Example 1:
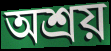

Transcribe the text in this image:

অশ্রয়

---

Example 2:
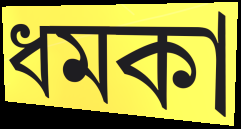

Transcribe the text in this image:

ধমকা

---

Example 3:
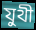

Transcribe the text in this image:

যুথী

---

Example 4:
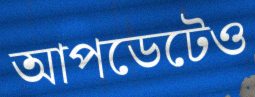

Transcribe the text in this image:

আপডেটেও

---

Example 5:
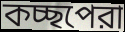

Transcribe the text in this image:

কচ্ছপেরা